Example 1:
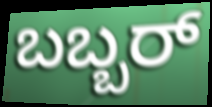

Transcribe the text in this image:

ಬಬ್ಬರ್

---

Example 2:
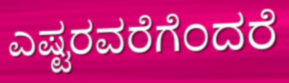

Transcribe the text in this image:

ಎಷ್ಟರವರೆಗೆಂದರೆ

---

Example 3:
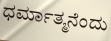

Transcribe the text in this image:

ಧರ್ಮಾತ್ಮನೆಂದು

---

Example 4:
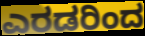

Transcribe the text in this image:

ಎರಡರಿಂದ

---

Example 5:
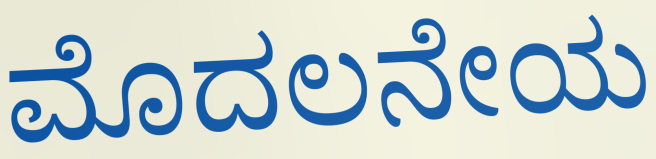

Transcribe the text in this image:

ಮೊದಲನೇಯ